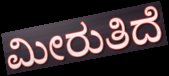
ಮೀರುತಿದೆ